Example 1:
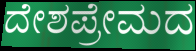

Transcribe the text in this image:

ದೇಶಪ್ರೇಮದ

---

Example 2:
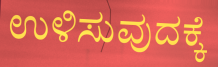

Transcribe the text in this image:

ಉಳಿಸುವುದಕ್ಕೆ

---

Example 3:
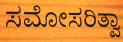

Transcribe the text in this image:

ಸಮೋಸರಿತ್ವಾ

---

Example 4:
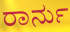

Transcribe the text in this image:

ರಾರ್ನು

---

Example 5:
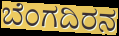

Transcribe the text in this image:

ಬೆಂಗದಿರನ